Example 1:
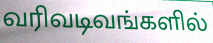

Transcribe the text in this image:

வரிவடிவங்களில்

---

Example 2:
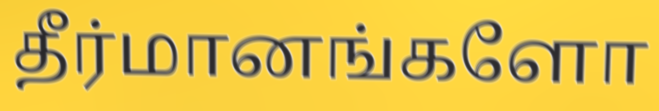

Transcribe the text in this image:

தீர்மானங்களோ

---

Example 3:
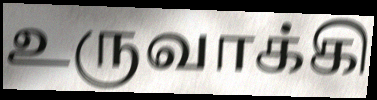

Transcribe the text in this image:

உருவாக்கி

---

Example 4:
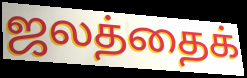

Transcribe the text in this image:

ஜலத்தைக்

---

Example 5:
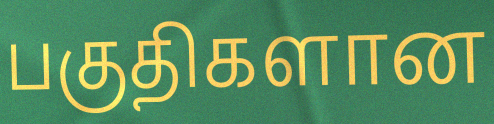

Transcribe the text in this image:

பகுதிகளான